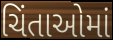
ચિંતાઓમાં